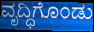
ವೃದ್ಧಿಗೊಂಡು